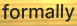
formally